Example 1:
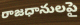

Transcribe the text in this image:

రాజధానులపై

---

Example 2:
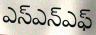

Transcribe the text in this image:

ఎస్ఎన్ఎఫ్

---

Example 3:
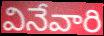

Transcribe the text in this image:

వినేవారి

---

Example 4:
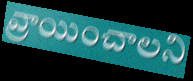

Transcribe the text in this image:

వ్రాయించాలని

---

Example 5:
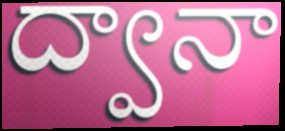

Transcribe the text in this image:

ద్వానా